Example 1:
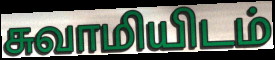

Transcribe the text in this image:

சுவாமியிடம்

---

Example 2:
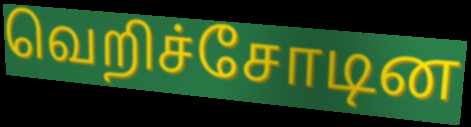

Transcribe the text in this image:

வெறிச்சோடின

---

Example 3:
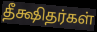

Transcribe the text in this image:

தீக்ஷிதர்கள்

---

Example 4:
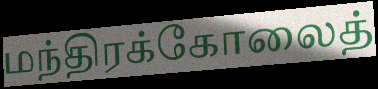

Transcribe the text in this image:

மந்திரக்கோலைத்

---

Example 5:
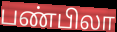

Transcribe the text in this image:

பண்பிலா